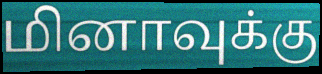
மினாவுக்கு